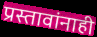
प्रस्तावांनाही